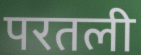
परतली